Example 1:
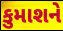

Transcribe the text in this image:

કુમાશને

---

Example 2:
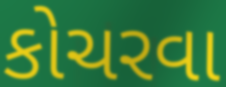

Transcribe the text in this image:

કોચરવા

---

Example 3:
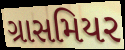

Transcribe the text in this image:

ગ્રાસમિયર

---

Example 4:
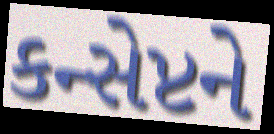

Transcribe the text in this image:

કન્સેપ્ટને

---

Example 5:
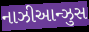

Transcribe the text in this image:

નાઝીઆન્ઝુસ